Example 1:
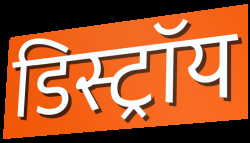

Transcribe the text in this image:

डिस्ट्रॉय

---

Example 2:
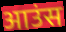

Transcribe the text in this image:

आउंस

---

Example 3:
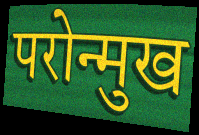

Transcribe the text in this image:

परोन्मुख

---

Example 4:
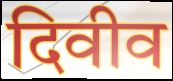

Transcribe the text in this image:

दिवीव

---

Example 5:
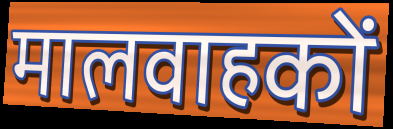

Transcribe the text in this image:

मालवाहकों